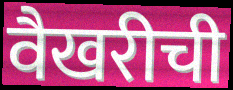
वैखरीची